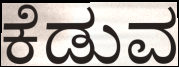
ಕೆಡುವ